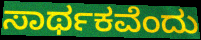
ಸಾರ್ಥಕವೆಂದು